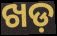
ଖଡ଼